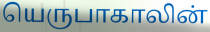
யெருபாகாலின்